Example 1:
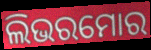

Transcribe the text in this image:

ଲିଭରମୋର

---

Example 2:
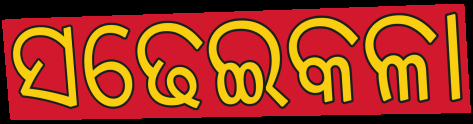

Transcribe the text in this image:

ସଢେଇକଳା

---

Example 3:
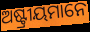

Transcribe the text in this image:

ଅଷ୍ଟ୍ରୀୟମାନେ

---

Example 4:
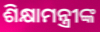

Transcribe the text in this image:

ଶିକ୍ଷାମନ୍ତ୍ରୀଙ୍କ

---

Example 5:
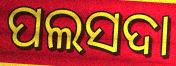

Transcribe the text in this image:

ପଲସଦା